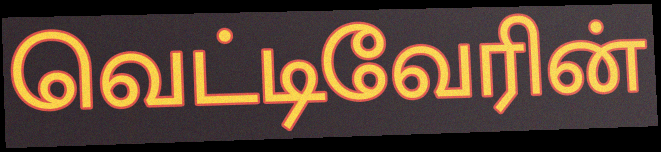
வெட்டிவேரின்